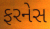
ફરનેસ